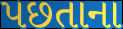
પછતાના